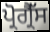
ਪ੍ਰੋਗ੍ਰੈੱਸ